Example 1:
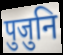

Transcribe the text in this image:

पुजुनि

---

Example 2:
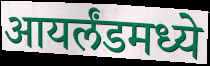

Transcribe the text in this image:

आयर्लंडमध्ये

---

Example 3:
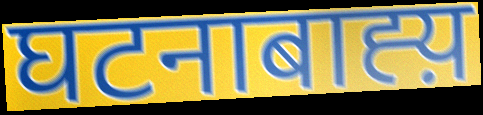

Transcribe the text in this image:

घटनाबाह्य़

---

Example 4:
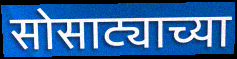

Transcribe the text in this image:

सोसाट्याच्या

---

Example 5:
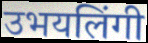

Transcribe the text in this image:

उभयलिंगी